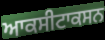
ਆਕਸੀਟਾਕਸਨ